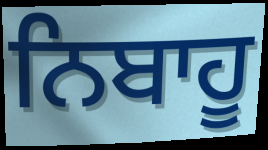
ਨਿਬਾਹੂ